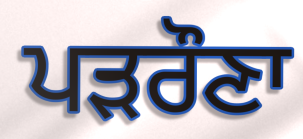
ਪੜਰੌਣਾ